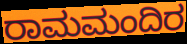
ರಾಮಮಂದಿರ